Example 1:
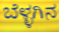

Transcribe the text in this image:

ಬೆಳ್ಳಗಿನ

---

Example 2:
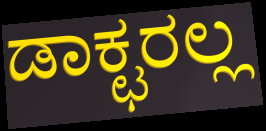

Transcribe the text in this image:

ಡಾಕ್ಟರಲ್ಲ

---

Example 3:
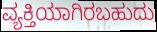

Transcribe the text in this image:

ವ್ಯಕ್ತಿಯಾಗಿರಬಹುದು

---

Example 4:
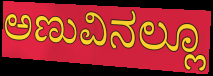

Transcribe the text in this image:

ಅಣುವಿನಲ್ಲೂ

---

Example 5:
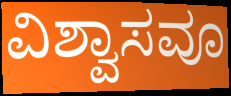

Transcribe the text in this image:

ವಿಶ್ವಾಸವೂ